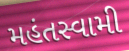
મહંતસ્વામી